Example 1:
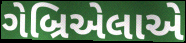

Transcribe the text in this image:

ગેબ્રિએલાએ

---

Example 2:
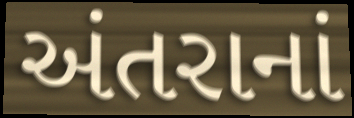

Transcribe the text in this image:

અંતરાનાં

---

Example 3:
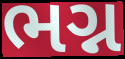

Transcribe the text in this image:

ભગ્ન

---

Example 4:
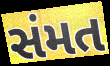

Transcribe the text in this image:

સંમત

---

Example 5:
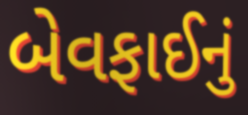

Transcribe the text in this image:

બેવફાઈનું